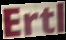
Ertl